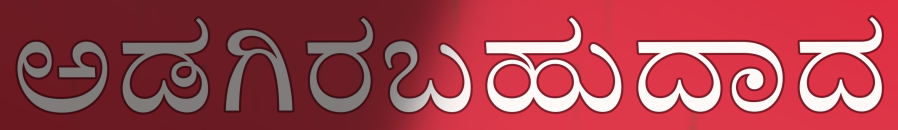
ಅಡಗಿರಬಹುದಾದ